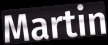
Martin